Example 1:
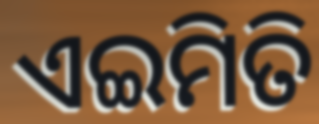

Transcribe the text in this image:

ଏଇମିତି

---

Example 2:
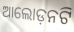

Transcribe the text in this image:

ଆଲୋଡ଼ନଟି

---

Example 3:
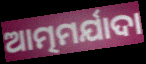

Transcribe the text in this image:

ଆତ୍ମମର୍ଯାଦା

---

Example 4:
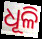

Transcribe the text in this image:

ଧୂଳି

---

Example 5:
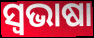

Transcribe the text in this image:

ସ୍ୱଭାଷା